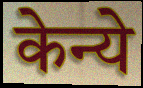
केन्ये